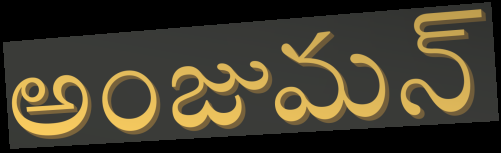
అంజుమన్